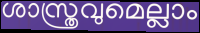
ശാസ്ത്രവുമെല്ലാം